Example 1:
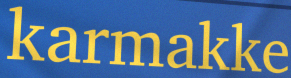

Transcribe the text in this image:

karmakke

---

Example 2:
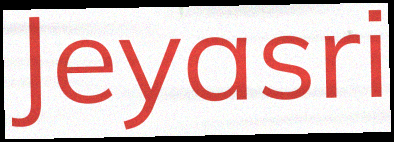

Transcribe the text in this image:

Jeyasri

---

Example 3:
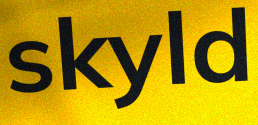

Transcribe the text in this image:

skyld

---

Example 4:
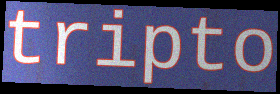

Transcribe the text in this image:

tripto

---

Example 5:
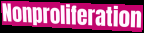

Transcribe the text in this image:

Nonproliferation